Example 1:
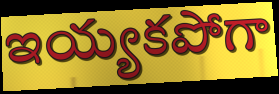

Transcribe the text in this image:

ఇయ్యకపోగా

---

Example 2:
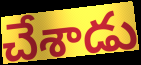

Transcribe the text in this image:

చేశాడు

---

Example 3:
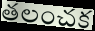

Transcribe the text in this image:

తలంచక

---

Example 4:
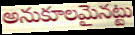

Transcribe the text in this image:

అనుకూలమైనట్టు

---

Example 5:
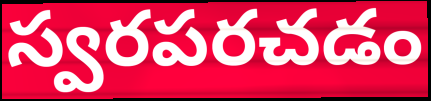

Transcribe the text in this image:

స్వరపరచడం